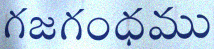
గజగంధము